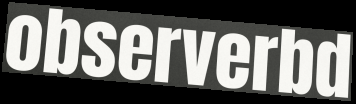
observerbd